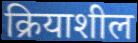
क्रियाशील